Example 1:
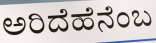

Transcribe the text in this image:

ಅರಿದೆಹೆನೆಂಬ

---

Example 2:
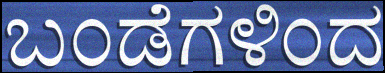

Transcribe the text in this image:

ಬಂಡೆಗಳಿಂದ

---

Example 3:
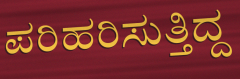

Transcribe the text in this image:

ಪರಿಹರಿಸುತ್ತಿದ್ದ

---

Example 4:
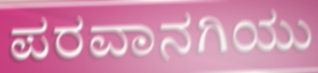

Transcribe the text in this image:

ಪರವಾನಗಿಯು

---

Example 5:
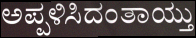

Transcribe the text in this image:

ಅಪ್ಪಳಿಸಿದಂತಾಯ್ತು